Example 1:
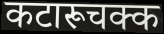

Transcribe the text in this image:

कटारूचक्क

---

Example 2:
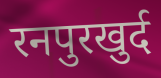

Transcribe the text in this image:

रनपुरखुर्द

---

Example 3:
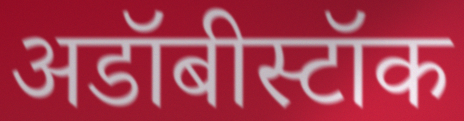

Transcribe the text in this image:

अडॉबीस्टॉक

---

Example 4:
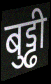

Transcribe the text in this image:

बुड्ढी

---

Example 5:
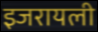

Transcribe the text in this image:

इजरायली